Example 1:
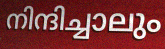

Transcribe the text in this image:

നിന്ദിച്ചാലും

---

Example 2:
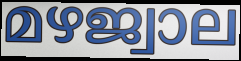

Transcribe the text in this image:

മഴജ്വാല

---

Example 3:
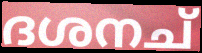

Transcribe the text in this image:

ദശനച്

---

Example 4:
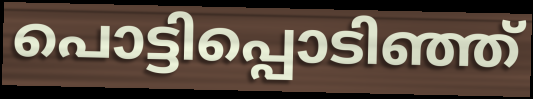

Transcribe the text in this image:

പൊട്ടിപ്പൊടിഞ്ഞ്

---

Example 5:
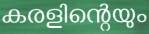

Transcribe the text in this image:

കരളിന്റെയും